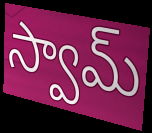
స్వామ్